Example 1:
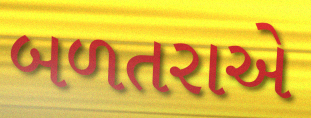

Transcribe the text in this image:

બળતરાએ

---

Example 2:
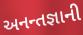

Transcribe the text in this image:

અનન્તજ્ઞાની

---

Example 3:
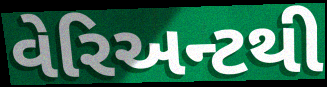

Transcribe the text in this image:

વેરિઅન્ટથી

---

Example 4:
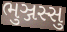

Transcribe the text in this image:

ભુઞ્જસ્સુ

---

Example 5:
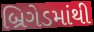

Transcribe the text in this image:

બ્રિગેડમાંથી